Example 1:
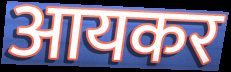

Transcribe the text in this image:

आयकर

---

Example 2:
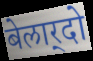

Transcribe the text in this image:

बेलार्दो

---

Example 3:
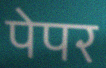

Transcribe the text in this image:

पेपर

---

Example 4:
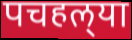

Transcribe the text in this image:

पचहल्या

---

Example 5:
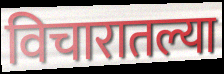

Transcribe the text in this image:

विचारातल्या